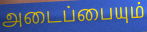
அடைப்பையும்